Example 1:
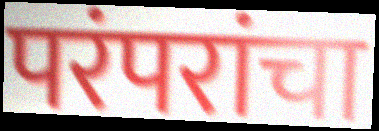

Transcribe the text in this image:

परंपरांचा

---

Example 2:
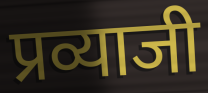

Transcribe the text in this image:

प्रव्याजी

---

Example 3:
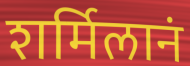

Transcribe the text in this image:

शर्मिलानं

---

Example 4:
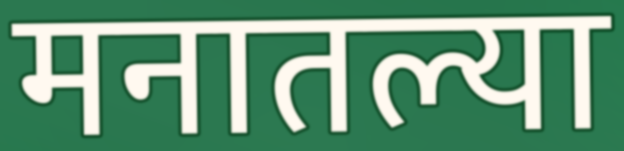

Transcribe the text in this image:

मनातल्या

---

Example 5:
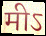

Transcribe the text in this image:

मीऽ